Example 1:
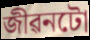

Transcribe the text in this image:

জীৱনটো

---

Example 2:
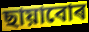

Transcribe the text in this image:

ছায়াবোৰ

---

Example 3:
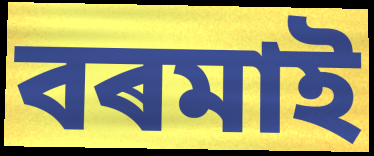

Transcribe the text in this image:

বৰমাই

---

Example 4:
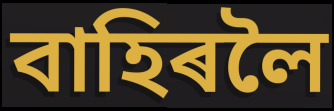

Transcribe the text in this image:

বাহিৰলৈ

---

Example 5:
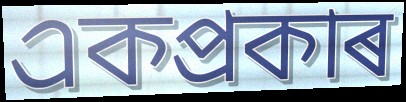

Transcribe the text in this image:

একপ্ৰকাৰ